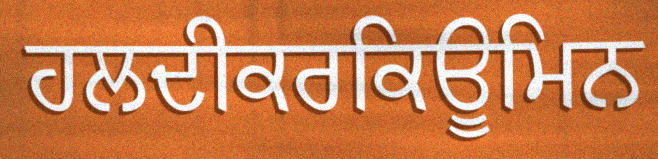
ਹਲਦੀਕਰਕਿਊਮਿਨ